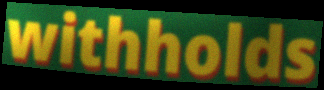
withholds